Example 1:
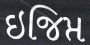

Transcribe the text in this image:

ઇજિપ્ત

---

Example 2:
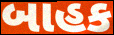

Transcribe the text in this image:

બાહક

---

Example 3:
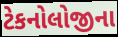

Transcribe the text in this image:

ટેકનોલોજીના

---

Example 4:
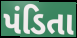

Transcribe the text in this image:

પંડિતા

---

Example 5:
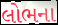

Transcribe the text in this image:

લોભના